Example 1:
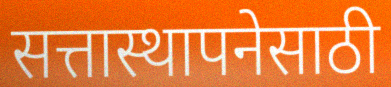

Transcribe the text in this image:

सत्तास्थापनेसाठी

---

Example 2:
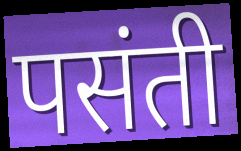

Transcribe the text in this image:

पसंती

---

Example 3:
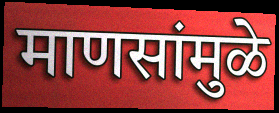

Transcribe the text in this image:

माणसांमुळे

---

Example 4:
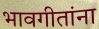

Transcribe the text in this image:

भावगीतांना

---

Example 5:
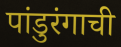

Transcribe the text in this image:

पांडुरंगाची